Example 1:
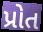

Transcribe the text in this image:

પ્રોત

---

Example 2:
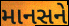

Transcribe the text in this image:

માનસને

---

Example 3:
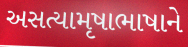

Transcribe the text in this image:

અસત્યામૃષાભાષાને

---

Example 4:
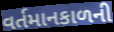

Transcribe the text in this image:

વર્તમાનકાળની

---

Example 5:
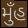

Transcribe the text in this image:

મુઁહ